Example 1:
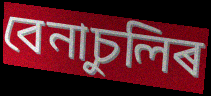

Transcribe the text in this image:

বেনাচুলিৰ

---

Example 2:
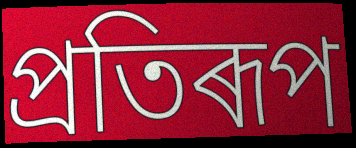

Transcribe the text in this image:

প্ৰতিৰূপ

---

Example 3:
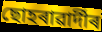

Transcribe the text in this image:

ছোহৰাৱাৰ্দীৰ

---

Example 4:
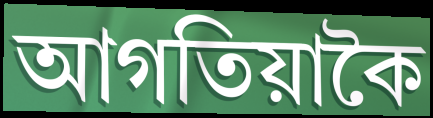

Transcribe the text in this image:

আগতিয়াকৈ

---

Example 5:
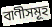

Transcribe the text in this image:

বাণীসমূহ